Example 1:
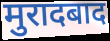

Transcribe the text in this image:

मुरादबाद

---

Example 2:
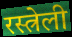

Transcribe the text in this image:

रस्त्रेली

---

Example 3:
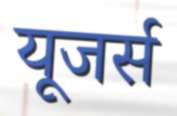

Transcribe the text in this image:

यूजर्स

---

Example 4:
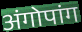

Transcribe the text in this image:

अंगोपांग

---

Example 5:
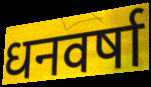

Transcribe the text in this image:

धनवर्षा